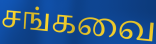
சங்கவை